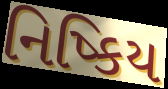
નિષ્કિય